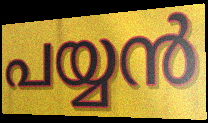
പയ്യൻ